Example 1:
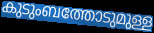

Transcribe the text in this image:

കുടുംബത്തോടുമുള്ള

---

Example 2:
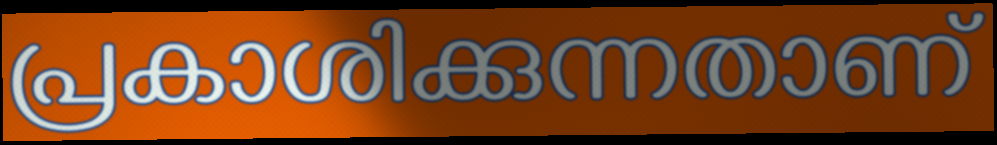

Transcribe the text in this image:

പ്രകാശിക്കുന്നതാണ്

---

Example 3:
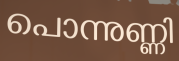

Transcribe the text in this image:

പൊന്നുണ്ണി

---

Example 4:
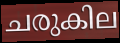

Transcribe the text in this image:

ചരുകില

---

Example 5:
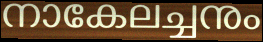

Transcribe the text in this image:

നാകേലച്ചനും